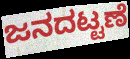
ಜನದಟ್ಟಣೆ